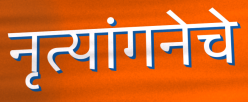
नृत्यांगनेचे